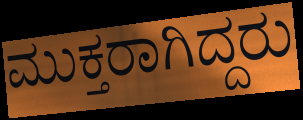
ಮುಕ್ತರಾಗಿದ್ದರು